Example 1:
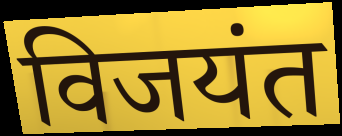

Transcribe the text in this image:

विजयंत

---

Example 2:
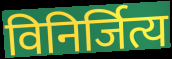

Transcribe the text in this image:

विनिर्जित्य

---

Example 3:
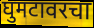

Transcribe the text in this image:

घुमटावरचा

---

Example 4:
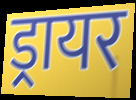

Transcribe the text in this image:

ड्रायर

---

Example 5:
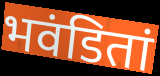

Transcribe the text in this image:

भवंडितां